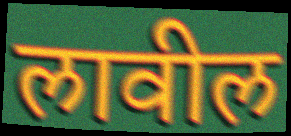
लावील